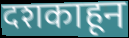
दशकाहून